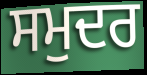
ਸਮੁਦਰ